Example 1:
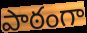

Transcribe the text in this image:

పాఠంగా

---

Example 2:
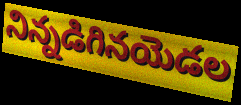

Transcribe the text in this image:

నిన్నడిగినయెడల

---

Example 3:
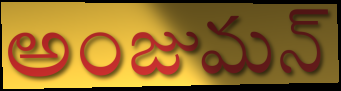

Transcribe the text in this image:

అంజుమన్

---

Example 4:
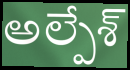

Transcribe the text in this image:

అల్పేశ్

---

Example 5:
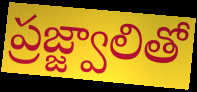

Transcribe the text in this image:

ప్రజ్జ్వాలితో